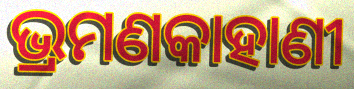
ଭ୍ରମଣକାହାଣୀ